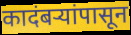
कादंबऱ्यांपासून